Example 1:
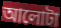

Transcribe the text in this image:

আলোটা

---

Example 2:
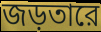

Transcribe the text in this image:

জড়তারে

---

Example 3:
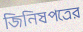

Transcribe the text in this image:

জিনিষপত্রের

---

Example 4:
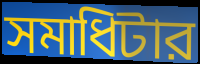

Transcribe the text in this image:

সমাধিটার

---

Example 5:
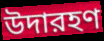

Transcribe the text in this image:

উদারহণ